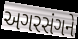
અગરસંગને